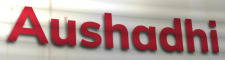
Aushadhi